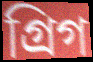
গ্রিগ